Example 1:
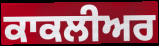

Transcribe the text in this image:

ਕਾਕਲੀਅਰ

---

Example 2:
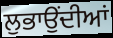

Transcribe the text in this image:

ਲੁਭਾਉਂਦੀਆਂ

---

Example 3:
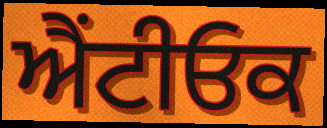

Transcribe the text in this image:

ਐਂਟੀਓਕ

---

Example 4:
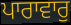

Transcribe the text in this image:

ਪਾਰਾਵਾਰੁ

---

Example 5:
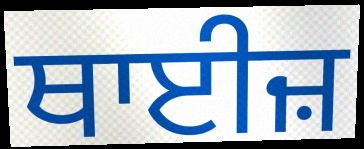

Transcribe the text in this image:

ਥਾਈਜ਼